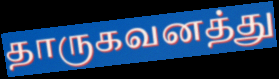
தாருகவனத்து